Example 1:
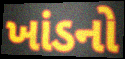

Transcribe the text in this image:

ખાંડનો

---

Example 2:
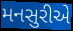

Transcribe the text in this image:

મનસુરીએ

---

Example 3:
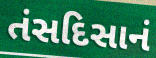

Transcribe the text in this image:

તંસદિસાનં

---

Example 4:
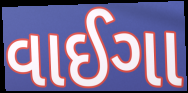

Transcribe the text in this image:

વાઈગા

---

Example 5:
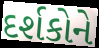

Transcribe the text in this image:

દર્શકોને